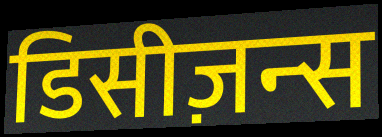
डिसीज़न्स